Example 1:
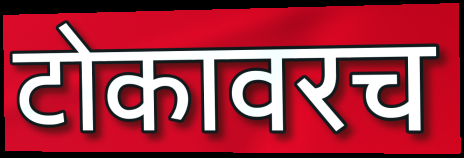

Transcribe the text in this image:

टोकावरच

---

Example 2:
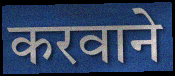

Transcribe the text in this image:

करवाने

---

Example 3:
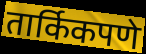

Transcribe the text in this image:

तार्किकपणे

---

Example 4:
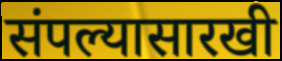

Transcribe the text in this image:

संपल्यासारखी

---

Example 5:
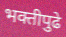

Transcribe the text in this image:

भक्तीपुढे